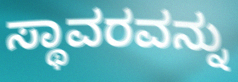
ಸ್ಥಾವರವನ್ನು